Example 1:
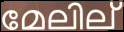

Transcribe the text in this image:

മേലില്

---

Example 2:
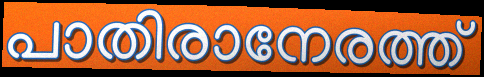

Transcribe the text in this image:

പാതിരാനേരത്ത്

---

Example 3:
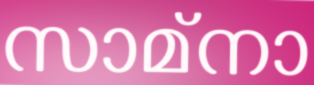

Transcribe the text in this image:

സാമ്നാ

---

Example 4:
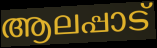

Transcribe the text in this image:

ആലപ്പാട്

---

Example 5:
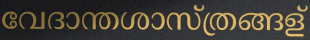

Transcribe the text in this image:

വേദാന്തശാസ്ത്രങ്ങള്